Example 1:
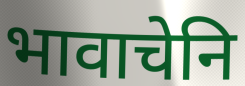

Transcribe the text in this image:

भावाचेनि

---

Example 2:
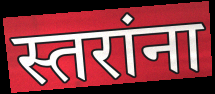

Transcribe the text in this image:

स्तरांना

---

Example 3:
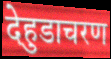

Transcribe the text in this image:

देहुडाचरण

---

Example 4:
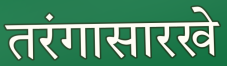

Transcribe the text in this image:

तरंगासारखे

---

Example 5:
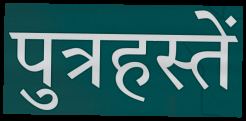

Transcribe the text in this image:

पुत्रहस्तें